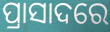
ପ୍ରାସାଦରେ